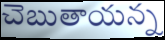
చెబుతాయన్న